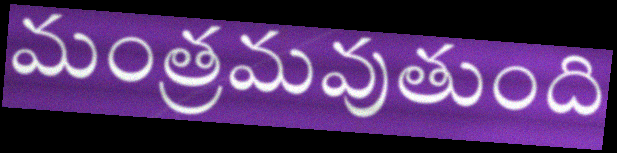
మంత్రమవుతుంది